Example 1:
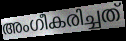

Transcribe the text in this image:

അംഗീകരിച്ചത്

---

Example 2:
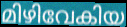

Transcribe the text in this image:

മിഴിവേകിയ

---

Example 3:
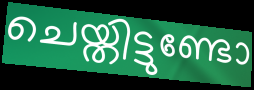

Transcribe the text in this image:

ചെയ്തിട്ടുണ്ടോ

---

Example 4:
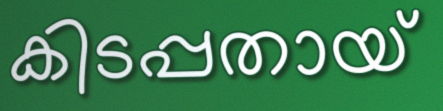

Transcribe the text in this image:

കിടപ്പതായ്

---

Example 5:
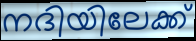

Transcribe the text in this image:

നദിയിലേക്ക്